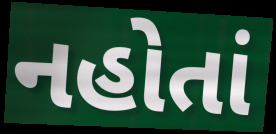
નહોતાં